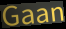
Gaan